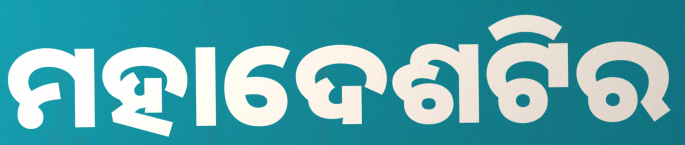
ମହାଦେଶଟିର